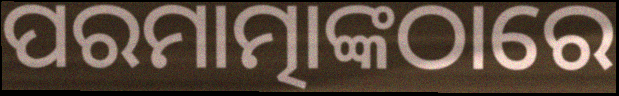
ପରମାତ୍ମାଙ୍କଠାରେ